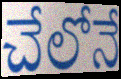
చేలోనే